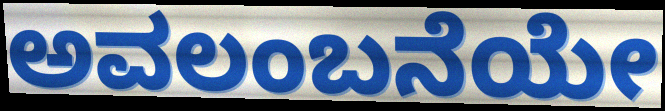
ಅವಲಂಬನೆಯೇ